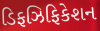
ડિફઝિફિકેશન